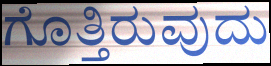
ಗೊತ್ತಿರುವುದು